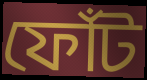
ফোঁট